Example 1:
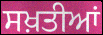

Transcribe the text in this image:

ਸਖ਼ਤੀਆਂ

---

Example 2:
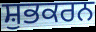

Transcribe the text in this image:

ਸ਼ੁਭਕਰਨ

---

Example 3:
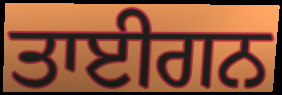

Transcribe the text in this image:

ਤਾਈਗਨ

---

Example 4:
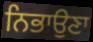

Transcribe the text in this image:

ਨਿਭਾਉਣਾ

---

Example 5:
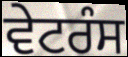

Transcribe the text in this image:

ਵੇਟਰੰਸ